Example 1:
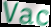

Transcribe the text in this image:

Vac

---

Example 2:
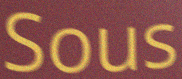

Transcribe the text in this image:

Sous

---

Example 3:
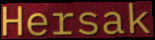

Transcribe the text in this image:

Hersak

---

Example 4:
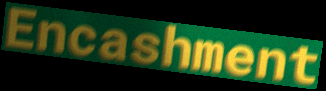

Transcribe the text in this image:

Encashment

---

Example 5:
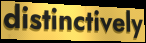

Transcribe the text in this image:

distinctively